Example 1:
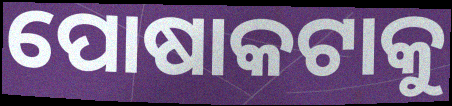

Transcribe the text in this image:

ପୋଷାକଟାକୁ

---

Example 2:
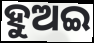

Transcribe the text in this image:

ହୁଅଇ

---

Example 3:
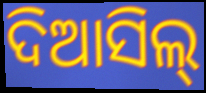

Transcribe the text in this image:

ଦିଆସିଲ୍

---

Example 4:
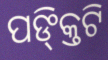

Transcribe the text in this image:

ପଙ୍କ୍ତିଟି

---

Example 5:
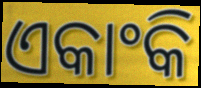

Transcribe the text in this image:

ଏକାଂକି